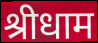
श्रीधाम